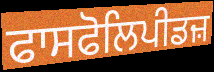
ਫਾਸਫੋਲਿਪੀਡਜ਼